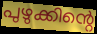
പുഴുക്കിന്റെ